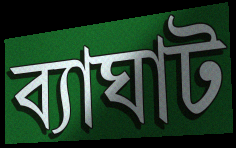
ব্যাঘাট